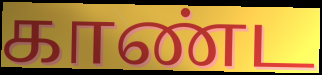
காண்ட